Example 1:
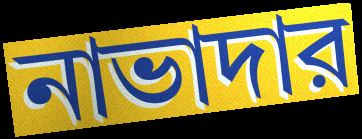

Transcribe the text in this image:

নাভাদার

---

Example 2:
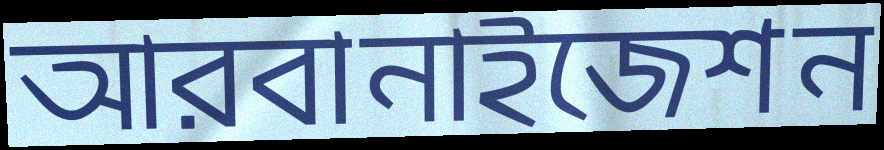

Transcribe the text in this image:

আরবানাইজেশন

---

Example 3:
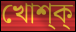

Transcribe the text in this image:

খোশ্ক্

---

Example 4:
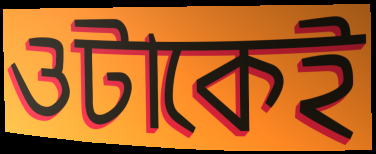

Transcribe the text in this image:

ওটাকেই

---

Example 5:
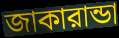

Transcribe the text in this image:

জাকারান্ডা